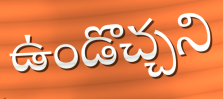
ఉండొచ్చని